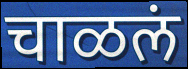
चाळलं